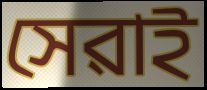
সেৱাই